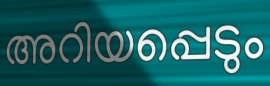
അറിയപ്പെടും